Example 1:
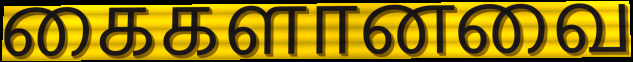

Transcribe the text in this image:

கைகளானவை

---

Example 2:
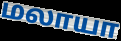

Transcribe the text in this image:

மலாயா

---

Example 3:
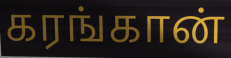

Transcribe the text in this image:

கரங்கான்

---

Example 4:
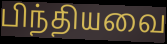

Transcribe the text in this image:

பிந்தியவை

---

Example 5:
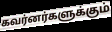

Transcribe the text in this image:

கவர்னர்களுக்கும்